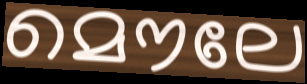
മൌലേ